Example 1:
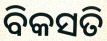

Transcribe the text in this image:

ବିକସତି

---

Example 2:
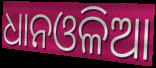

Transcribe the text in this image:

ଧାନଓଳିଆ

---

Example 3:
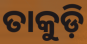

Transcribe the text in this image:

ତାକୁଡ଼ି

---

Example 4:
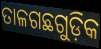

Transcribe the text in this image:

ତାଳଗଛଗୁଡ଼ିକ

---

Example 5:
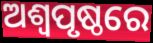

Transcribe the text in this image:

ଅଶ୍ୱପୃଷ୍ଠରେ